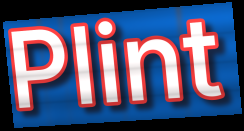
Plint